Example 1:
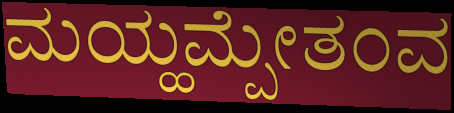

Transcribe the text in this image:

ಮಯ್ಹಮ್ಪೇತಂವ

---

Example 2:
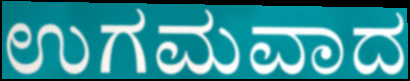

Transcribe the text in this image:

ಉಗಮವಾದ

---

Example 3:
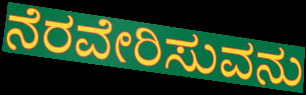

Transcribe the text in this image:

ನೆರವೇರಿಸುವನು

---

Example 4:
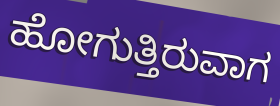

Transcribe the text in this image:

ಹೋಗುತ್ತಿರುವಾಗ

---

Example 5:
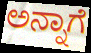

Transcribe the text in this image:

ಅನ್ನಾಗೆ